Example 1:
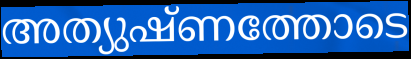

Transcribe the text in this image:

അത്യുഷ്ണത്തോടെ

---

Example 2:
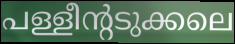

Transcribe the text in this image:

പള്ളീന്റടുക്കലെ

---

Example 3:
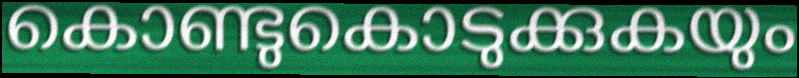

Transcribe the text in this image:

കൊണ്ടുകൊടുക്കുകയും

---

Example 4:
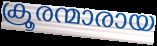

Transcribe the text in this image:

ക്രൂരന്മാരായ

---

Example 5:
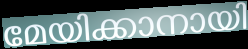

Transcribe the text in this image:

മേയിക്കാനായി